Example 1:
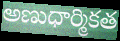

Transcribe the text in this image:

అణుధార్మికత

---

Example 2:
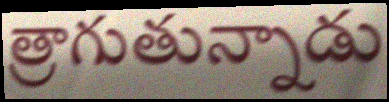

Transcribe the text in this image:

త్రాగుతున్నాడు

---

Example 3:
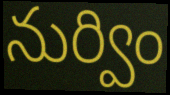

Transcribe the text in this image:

నుర్విం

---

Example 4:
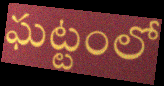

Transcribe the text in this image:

ఘట్టంలో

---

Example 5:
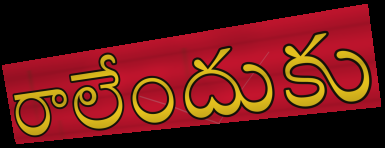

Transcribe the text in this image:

రాలేందుకు